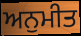
ਅਨੁਮੀਤ